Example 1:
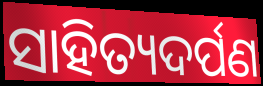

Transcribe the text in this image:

ସାହିତ୍ୟଦର୍ପଣ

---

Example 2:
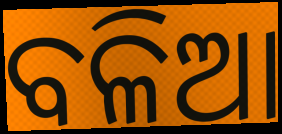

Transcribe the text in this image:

ବଳିଆ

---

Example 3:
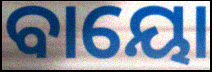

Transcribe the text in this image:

ବାୟୋ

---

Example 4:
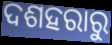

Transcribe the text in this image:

ଦଶହରାରୁ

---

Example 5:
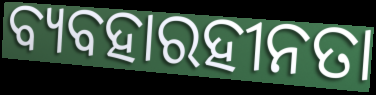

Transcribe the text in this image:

ବ୍ୟବହାରହୀନତା